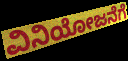
ವಿನಿಯೋಜನೆಗೆ